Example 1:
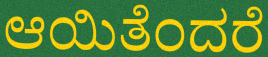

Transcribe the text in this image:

ಆಯಿತೆಂದರೆ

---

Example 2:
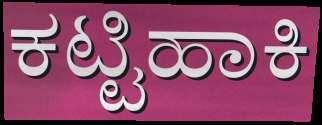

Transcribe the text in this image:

ಕಟ್ಟಿಹಾಕಿ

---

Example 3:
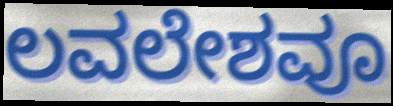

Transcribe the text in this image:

ಲವಲೇಶವೂ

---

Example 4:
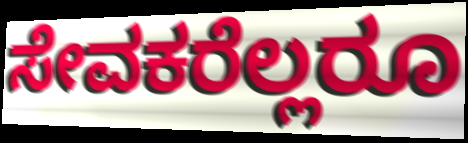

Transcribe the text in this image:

ಸೇವಕರೆಲ್ಲರೂ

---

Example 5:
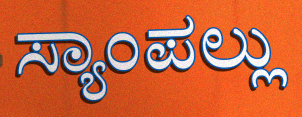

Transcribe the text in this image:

ಸ್ಯಾಂಪಲ್ಲು